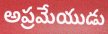
అప్రమేయుడు